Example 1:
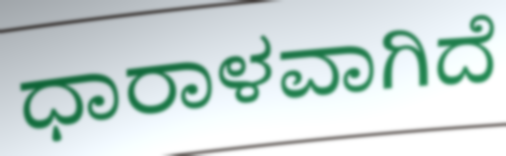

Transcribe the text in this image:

ಧಾರಾಳವಾಗಿದೆ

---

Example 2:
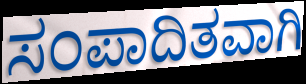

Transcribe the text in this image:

ಸಂಪಾದಿತವಾಗಿ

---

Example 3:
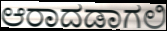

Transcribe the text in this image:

ಆರಾದಡಾಗಲಿ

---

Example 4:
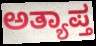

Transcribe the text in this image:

ಅತ್ಯಾಪ್ತ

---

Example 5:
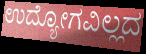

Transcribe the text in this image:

ಉದ್ಯೋಗವಿಲ್ಲದ